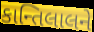
કાન્તિલાલને